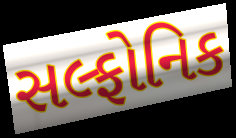
સલ્ફોનિક